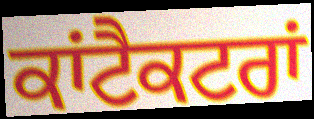
ਕਾਂਟੈਕਟਰਾਂ